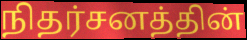
நிதர்சனத்தின்